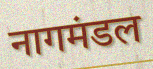
नागमंडल